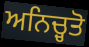
ਅਨਿਚ੍ਚਤੋ